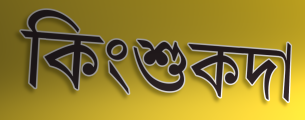
কিংশুকদা